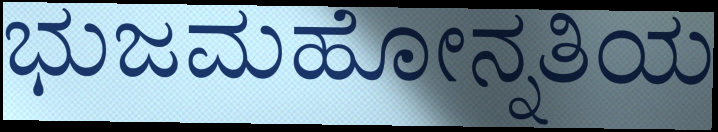
ಭುಜಮಹೋನ್ನತಿಯ